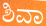
ಶಿವಾ